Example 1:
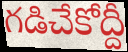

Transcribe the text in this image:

గడిచేకోద్దీ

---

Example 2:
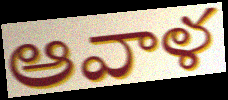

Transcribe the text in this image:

ఆవాళ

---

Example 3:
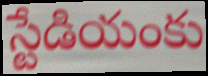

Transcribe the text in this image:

స్టేడియంకు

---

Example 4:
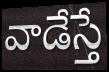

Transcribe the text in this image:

వాడేస్తే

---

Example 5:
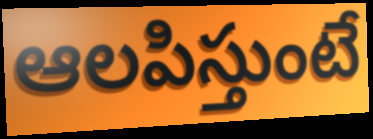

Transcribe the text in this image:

ఆలపిస్తుంటే